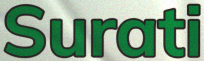
Surati